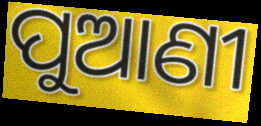
ପୁଆଣୀ